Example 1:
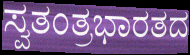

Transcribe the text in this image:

ಸ್ವತಂತ್ರಭಾರತದ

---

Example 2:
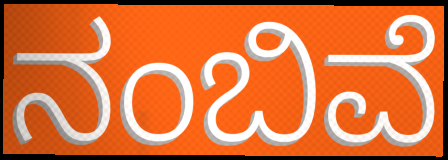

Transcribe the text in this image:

ನಂಬಿವೆ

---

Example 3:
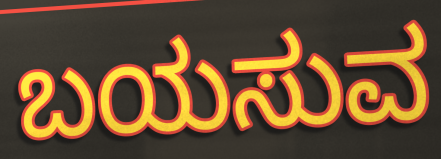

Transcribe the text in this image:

ಬಯಸುವ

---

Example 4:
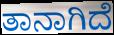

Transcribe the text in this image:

ತಾನಾಗಿದೆ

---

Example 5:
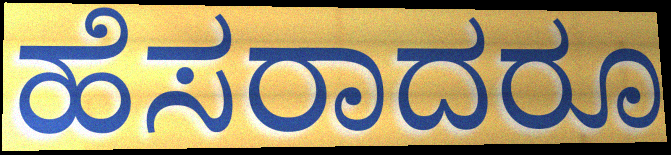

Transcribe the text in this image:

ಹೆಸರಾದರೂ